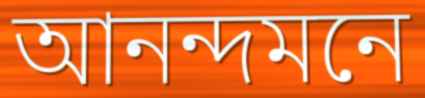
আনন্দমনে